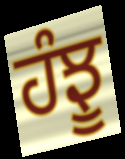
ਹੰਝੂ